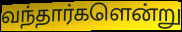
வந்தார்களென்று